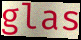
glas